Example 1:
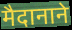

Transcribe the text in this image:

मैदानाने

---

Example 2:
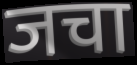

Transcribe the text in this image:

जचा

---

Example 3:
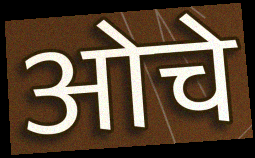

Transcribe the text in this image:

ओचे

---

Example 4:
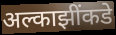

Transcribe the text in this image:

अल्काझींकडे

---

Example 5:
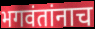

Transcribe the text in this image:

भगवंतांनाच